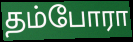
தம்போரா